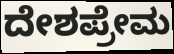
ದೇಶಪ್ರೇಮ